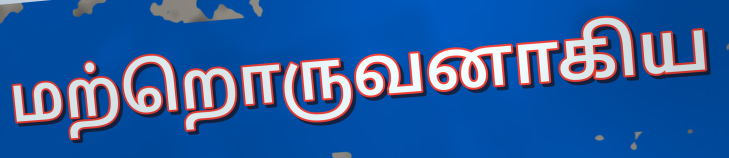
மற்றொருவனாகிய